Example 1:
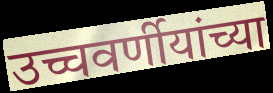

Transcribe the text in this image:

उच्चवर्णीयांच्या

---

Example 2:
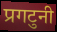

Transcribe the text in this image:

प्रगटुनी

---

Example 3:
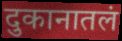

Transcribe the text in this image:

दुकानातलं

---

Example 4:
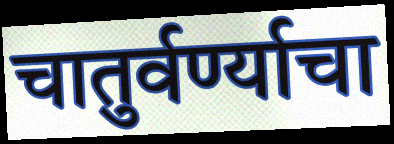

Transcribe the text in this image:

चातुर्वर्ण्याचा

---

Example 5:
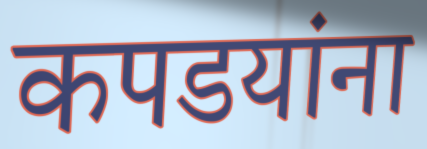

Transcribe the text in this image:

कपडयांना